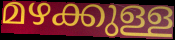
മഴക്കുള്ള